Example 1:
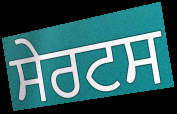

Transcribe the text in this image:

ਸੇਰਟਸ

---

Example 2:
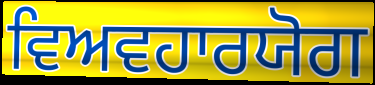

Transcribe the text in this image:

ਵਿਅਵਹਾਰਯੋਗ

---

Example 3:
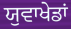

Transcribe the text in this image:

ਯੁਵਾਖੇਡਾਂ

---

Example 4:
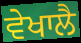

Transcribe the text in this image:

ਵੇਖਾਲੈ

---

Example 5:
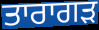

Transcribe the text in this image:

ਤਾਰਾਗੜ